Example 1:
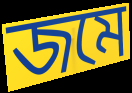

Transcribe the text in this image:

জমে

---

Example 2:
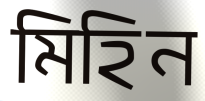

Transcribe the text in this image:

মিহিন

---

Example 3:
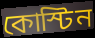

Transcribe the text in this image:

কোস্টিন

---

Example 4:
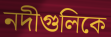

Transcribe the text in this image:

নদীগুলিকে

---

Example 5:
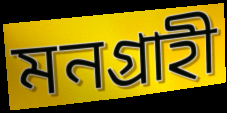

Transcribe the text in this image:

মনগ্রাহী